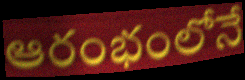
ఆరంభంలోనే